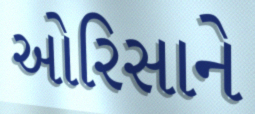
ઓરિસાને